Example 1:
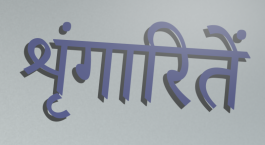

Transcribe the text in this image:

शृंगारितें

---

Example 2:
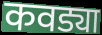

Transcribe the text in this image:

कवड्या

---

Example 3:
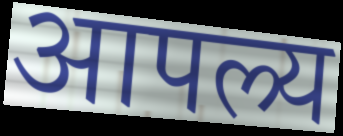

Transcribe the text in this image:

आपल्य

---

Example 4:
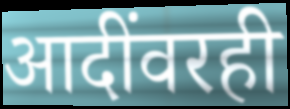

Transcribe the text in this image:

आदींवरही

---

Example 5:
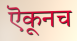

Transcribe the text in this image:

ऎकूनच